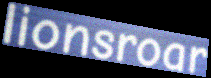
lionsroar